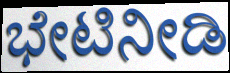
ಭೇಟಿನೀಡಿ